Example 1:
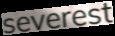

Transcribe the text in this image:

severest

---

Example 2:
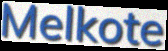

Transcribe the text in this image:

Melkote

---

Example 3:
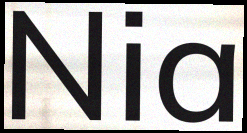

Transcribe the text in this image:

Nia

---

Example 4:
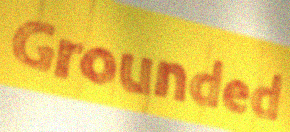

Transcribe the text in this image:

Grounded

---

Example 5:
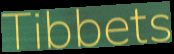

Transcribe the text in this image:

Tibbets